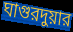
ঘাগুরদুয়ার